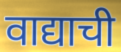
वाद्याची